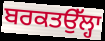
ਬਰਕਤਉੱਲ੍ਹਾ